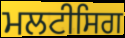
ਮਲਟੀਸਿਗ